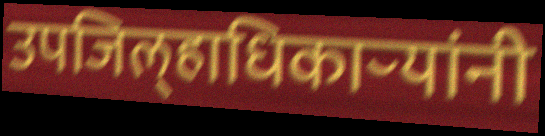
उपजिल्हाधिकाऱ्यांनी